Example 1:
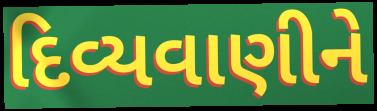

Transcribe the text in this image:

દિવ્યવાણીને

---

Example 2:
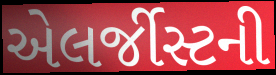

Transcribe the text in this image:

એલર્જીસ્ટની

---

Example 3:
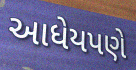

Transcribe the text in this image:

આધેયપણે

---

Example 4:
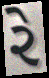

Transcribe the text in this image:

રે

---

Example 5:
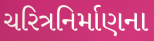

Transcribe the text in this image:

ચરિત્રનિર્માણના